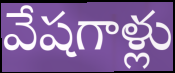
వేషగాళ్లు